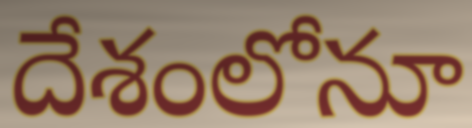
దేశంలోనూ